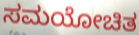
ಸಮಯೋಚಿತ